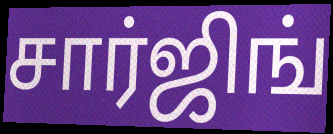
சார்ஜிங்